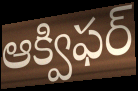
ఆక్విఫర్